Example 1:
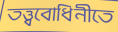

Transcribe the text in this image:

তত্ত্ববোধিনীতে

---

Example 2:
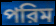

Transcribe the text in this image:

পরিম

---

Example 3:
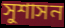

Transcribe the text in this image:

সুশাসন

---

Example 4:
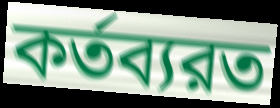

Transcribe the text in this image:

কর্তব্যরত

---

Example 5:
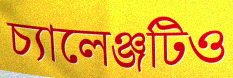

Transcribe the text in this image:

চ্যালেঞ্জটিও